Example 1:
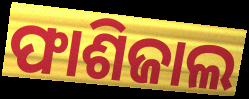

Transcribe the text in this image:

ଫାଶିଜାଲ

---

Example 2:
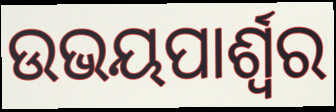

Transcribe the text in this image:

ଉଭୟପାର୍ଶ୍ୱର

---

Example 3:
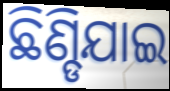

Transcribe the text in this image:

ଛିଣ୍ଡିଯାଇ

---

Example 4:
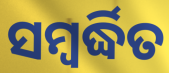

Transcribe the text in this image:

ସମ୍ବର୍ଦ୍ଧିତ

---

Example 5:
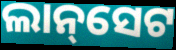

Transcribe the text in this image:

ଲାନ୍‌ସେଟ